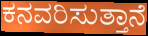
ಕನವರಿಸುತ್ತಾನೆ